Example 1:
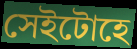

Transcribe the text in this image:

সেইটোহে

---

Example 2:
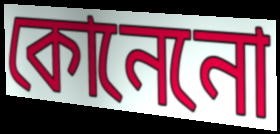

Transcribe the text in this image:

কোনেনো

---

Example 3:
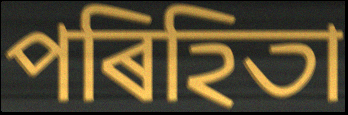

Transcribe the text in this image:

পৰিহিতা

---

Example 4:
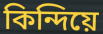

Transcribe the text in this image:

কিন্দিয়ে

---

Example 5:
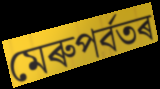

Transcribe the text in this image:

মেৰুপৰ্বতৰ